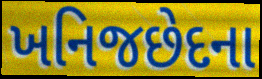
ખનિજછેદના